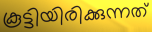
കൂട്ടിയിരിക്കുന്നത്